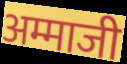
अम्माजी